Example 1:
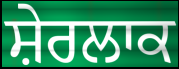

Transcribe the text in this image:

ਸ਼ੇਰਲਾਕ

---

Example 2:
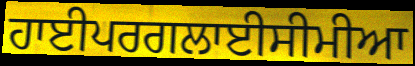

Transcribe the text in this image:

ਹਾਈਪਰਗਲਾਈਸੀਮੀਆ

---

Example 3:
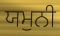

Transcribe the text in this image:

ਯਮੁਨੀ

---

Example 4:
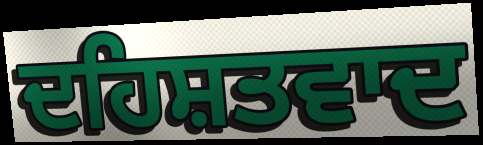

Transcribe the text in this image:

ਦਹਿਸ਼ਤਵਾਦ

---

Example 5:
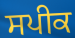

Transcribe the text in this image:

ਸਪੀਕ